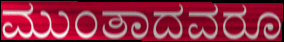
ಮುಂತಾದವರೂ